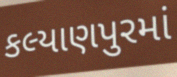
કલ્યાણપુરમાં